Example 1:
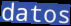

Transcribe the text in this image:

datos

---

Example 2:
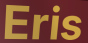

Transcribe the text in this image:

Eris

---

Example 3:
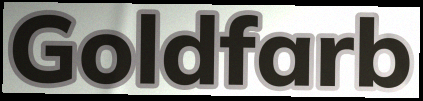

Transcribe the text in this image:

Goldfarb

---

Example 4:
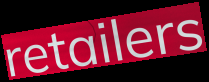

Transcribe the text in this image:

retailers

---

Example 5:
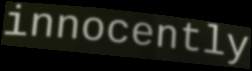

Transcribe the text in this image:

innocently